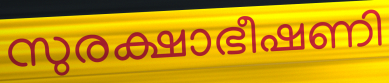
സുരക്ഷാഭീഷണി